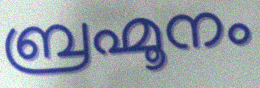
ബ്രഹ്മൂനം